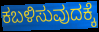
ಕಬಳಿಸುವುದಕ್ಕೆ